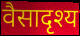
वैसादृश्य